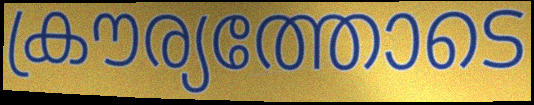
ക്രൗര്യത്തോടെ